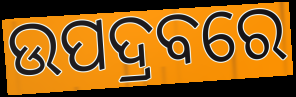
ଉପଦ୍ରବରେ